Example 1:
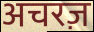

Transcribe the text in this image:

अचरज़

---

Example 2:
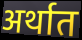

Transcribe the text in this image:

अर्थात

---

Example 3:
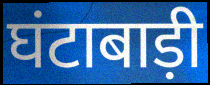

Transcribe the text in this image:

घंटाबाड़ी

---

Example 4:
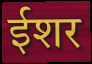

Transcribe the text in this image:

ईशर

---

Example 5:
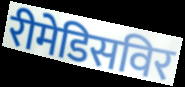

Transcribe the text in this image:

रीमेडिसविर